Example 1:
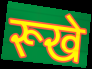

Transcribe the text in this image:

रूखे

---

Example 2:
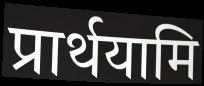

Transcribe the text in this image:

प्रार्थयामि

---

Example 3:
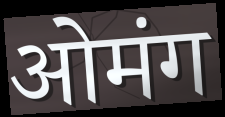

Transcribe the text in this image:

ओमंग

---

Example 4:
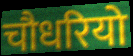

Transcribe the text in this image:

चौधरियो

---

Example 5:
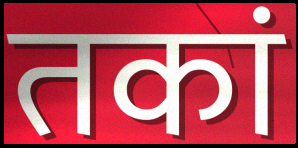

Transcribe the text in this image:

तकां